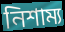
নিশাম্য